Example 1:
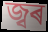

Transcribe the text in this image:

জ্বৰ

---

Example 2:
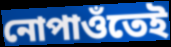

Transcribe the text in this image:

নোপাওঁতেই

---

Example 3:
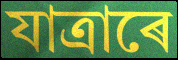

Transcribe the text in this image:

যাত্ৰাৰে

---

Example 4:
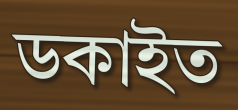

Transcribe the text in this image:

ডকাইত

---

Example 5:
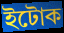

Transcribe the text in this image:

ইটোক